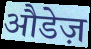
औडेज़